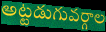
అట్టడుగువర్గాల